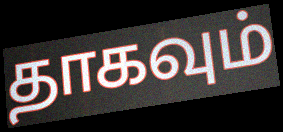
தாகவும்